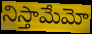
నిస్తామేమో